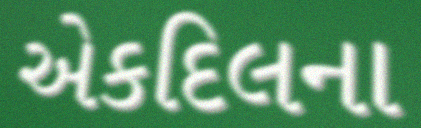
એકદિલના